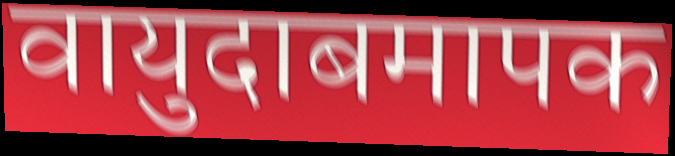
वायुदाबमापक